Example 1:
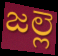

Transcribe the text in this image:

జల్లె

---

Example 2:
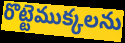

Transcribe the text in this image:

రొట్టెముక్కలను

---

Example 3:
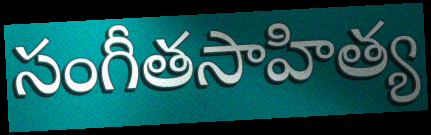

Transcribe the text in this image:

సంగీతసాహిత్య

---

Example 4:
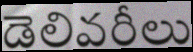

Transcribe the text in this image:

డెలివరీలు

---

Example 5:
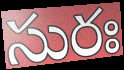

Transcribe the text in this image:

సురః